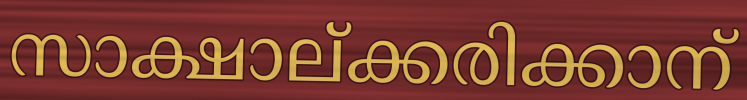
സാക്ഷാല്ക്കരിക്കാന്